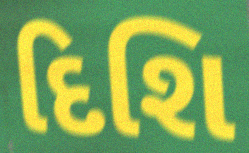
દિશિ